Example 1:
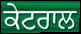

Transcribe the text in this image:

ਕੇਟਰਾਲ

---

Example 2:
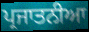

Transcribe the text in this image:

ਪ੍ਰਜਾਤਨੀਆ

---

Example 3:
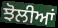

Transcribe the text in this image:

ਝੋਲੀਆਂ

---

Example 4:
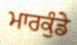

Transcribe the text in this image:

ਮਾਰਕੁੰਡੇ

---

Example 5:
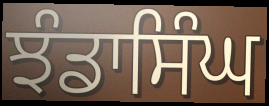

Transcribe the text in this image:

ਝੰਡਾਸਿੰਘ